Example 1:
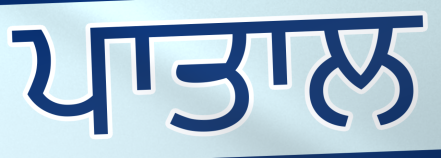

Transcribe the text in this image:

ਪਾਤਾਲ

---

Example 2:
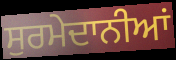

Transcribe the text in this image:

ਸੁਰਮੇਦਾਨੀਆਂ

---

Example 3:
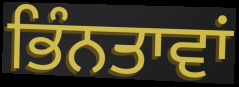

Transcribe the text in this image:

ਭਿੰਨਤਾਵਾਂ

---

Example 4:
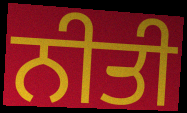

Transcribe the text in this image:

ਨੀਤੀ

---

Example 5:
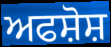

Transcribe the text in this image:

ਅਫਸ਼ੋਸ਼